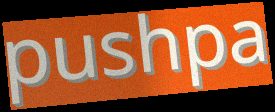
pushpa